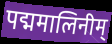
पद्ममालिनीम्